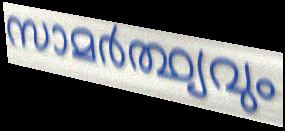
സാമർത്ഥ്യവും